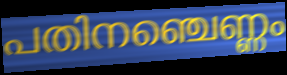
പതിനഞ്ചെണ്ണം